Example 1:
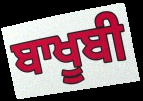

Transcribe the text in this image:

ਬਾਖੂਬੀ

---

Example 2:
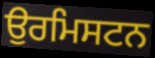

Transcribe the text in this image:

ਉਰਮਿਸਟਨ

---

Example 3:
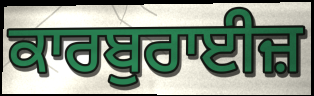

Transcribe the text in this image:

ਕਾਰਬੁਰਾਈਜ਼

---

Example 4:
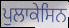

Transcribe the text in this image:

ਪੁਲਾਕੇਸਿਨ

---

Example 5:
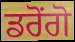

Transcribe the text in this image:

ਡਰੋਂਗੋ